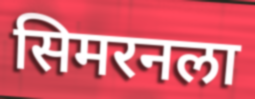
सिमरनला